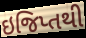
ઇજિપ્તથી